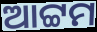
ଆଟ୍ଟମ